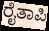
ರೈತಾಪಿ